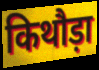
किथौड़ा